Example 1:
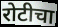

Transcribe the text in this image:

रोटीचा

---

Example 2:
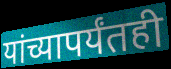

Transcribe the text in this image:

यांच्यापर्यंतही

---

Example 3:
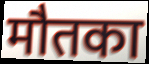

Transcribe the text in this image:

मौतका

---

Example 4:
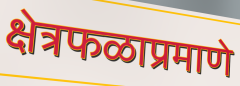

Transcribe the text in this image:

क्षेत्रफळाप्रमाणे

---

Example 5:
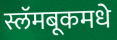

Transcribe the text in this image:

स्लॅमबूकमधे